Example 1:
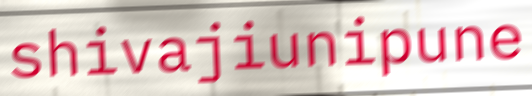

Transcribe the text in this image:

shivajiunipune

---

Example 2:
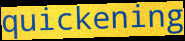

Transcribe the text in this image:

quickening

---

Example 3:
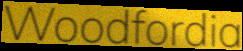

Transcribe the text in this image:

Woodfordia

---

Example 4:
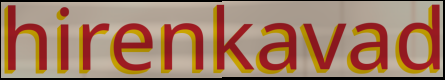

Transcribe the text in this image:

hirenkavad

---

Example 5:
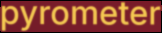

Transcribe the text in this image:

pyrometer